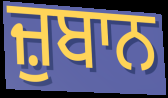
ਜ਼ੁਬਾਨ